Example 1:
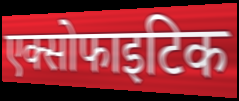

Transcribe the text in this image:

एक्सोफाइटिक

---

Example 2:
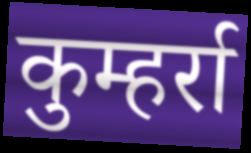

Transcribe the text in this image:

कुम्हर्रा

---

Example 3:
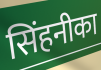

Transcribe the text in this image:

सिंहनीका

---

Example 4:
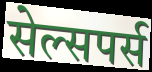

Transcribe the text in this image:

सेल्सपर्स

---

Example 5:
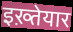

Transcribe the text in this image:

इख़्तेयार